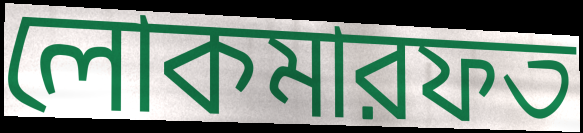
লোকমারফত